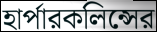
হার্পারকলিন্সের